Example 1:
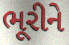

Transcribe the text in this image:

ભૂરીને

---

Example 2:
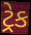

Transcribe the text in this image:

ટ્રેક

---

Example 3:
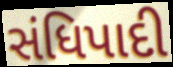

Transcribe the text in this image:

સંધિપાદી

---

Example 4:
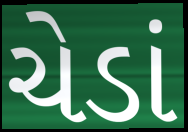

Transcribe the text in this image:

ચેડાં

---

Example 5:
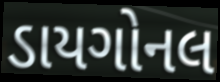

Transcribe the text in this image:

ડાયગોનલ